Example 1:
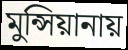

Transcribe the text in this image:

মুন্সিয়ানায়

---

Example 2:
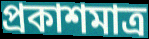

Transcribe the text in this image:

প্রকাশমাত্র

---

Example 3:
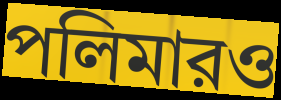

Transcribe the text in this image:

পলিমারও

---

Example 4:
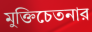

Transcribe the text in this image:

মুক্তিচেতনার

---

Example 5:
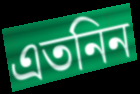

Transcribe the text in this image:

এতনিন